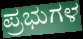
ಪ್ರಭುಗಳ